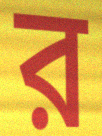
ব়